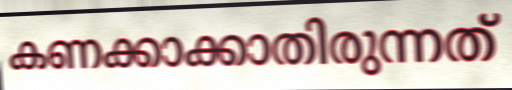
കണക്കാക്കാതിരുന്നത്